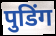
पुडिंग